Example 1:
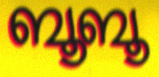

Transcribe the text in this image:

ബൂബൂ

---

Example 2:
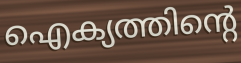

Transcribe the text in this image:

ഐക്യത്തിന്റെ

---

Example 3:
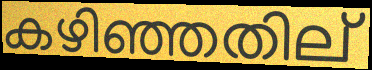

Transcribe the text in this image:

കഴിഞ്ഞതില്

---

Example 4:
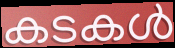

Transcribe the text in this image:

കടകൾ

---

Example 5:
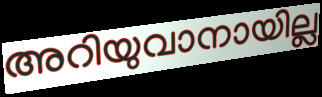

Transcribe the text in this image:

അറിയുവാനായില്ല